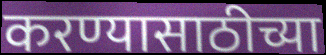
करण्यासाठीच्या